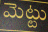
మెట్టు